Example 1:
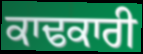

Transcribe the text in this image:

ਕਾਢਕਾਰੀ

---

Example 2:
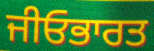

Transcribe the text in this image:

ਜੀਓਭਾਰਤ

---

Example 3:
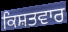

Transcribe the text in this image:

ਕਿਸ਼ਤਵਾਰ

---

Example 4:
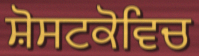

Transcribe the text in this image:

ਸ਼ੋਸਟਕੋਵਿਚ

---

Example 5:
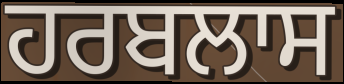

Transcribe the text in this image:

ਹਰਬਲਾਸ